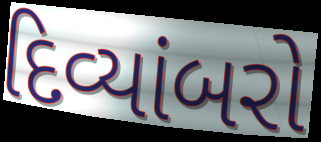
દિવ્યાંબરો